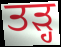
ਤੜ੍ਹ